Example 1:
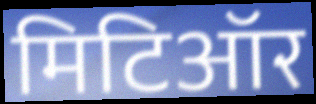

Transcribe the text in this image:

मिटिऑर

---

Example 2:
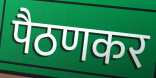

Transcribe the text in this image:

पैठणकर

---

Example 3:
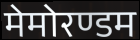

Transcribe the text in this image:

मेमोरण्डम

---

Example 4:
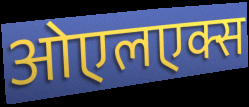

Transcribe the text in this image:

ओएलएक्स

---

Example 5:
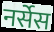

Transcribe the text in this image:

नर्सेस